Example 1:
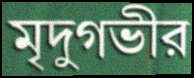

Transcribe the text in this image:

মৃদুগভীর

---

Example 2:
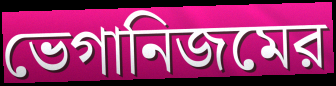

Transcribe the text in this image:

ভেগানিজমের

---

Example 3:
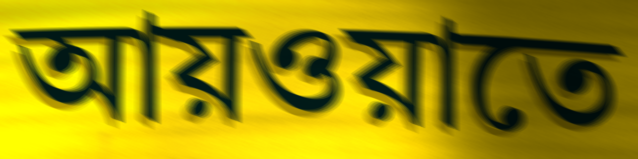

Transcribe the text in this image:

আয়ওয়াতে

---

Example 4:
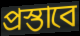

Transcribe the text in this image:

প্রস্তাবে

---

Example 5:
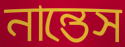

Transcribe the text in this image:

নান্তেস